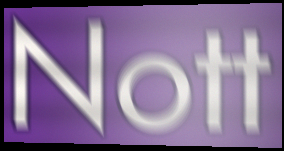
Nott